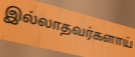
இல்லாதவர்களாய்